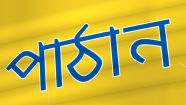
পাঠান